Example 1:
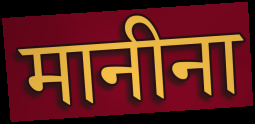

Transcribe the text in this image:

मानीना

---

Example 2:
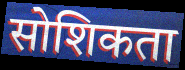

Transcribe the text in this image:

सोशिकता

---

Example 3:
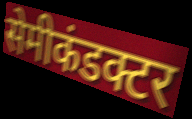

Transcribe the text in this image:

सेमीकंडक्टर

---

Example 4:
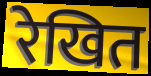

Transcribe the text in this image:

रेखित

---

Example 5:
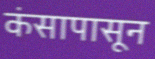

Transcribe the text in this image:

कंसापासून